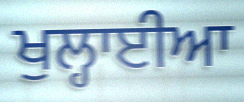
ਖੁਲ੍ਹਾਈਆ